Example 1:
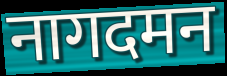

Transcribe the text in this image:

नागदमन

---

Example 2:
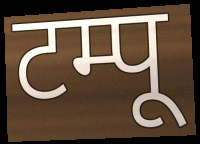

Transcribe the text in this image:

टम्पू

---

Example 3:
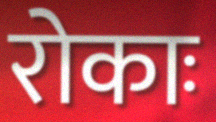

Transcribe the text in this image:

रोकाः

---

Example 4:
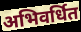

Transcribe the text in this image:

अभिवर्धित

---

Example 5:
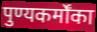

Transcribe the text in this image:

पुण्यकर्मोंका